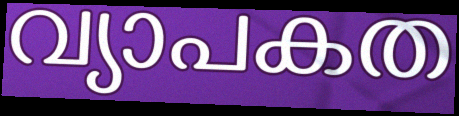
വ്യാപകത